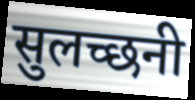
सुलच्छनी